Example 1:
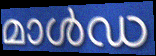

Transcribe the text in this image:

മാൾഡ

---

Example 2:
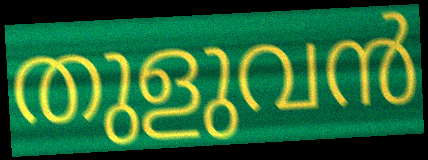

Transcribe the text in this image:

തുളുവൻ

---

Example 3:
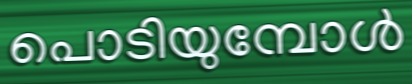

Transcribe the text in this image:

പൊടിയുമ്പോൾ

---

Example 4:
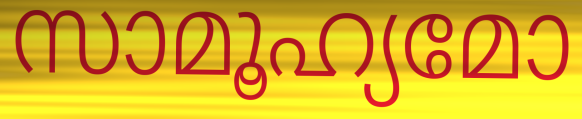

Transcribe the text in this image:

സാമൂഹ്യമോ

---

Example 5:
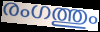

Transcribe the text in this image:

രംഗത്തും